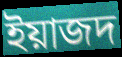
ইয়াজদ